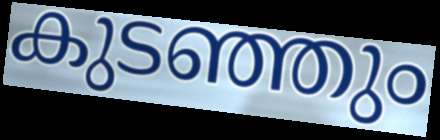
കുടഞ്ഞും